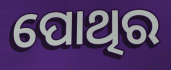
ପୋଥିର